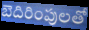
బెదిరింపులతో